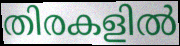
തിരകളിൽ